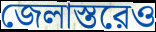
জেলাস্তরেও